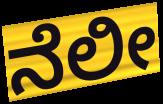
ನೆಲೀ